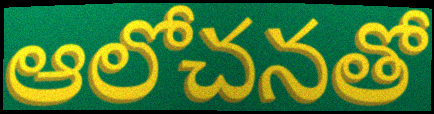
ఆలోచనతో